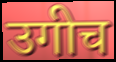
उगीच